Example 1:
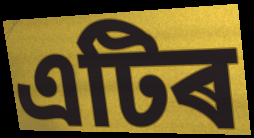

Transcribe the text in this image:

এটিৰ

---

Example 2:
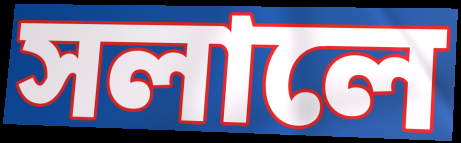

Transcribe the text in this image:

সলালে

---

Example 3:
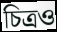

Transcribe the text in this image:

চিত্ৰও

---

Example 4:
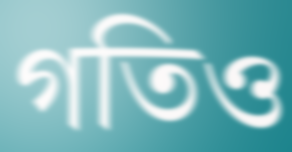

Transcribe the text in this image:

গতিও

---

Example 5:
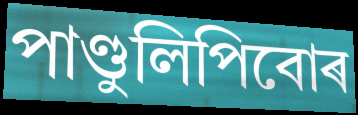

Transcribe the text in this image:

পাণ্ডুলিপিবোৰ